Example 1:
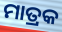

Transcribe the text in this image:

ମାତ୍ରକ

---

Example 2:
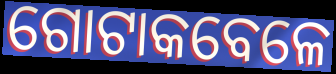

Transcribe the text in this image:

ଗୋଟାକବେଳେ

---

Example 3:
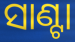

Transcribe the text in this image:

ସାଣ୍ଟା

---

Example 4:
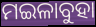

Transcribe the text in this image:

ମଇଳାବୁହା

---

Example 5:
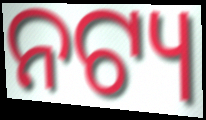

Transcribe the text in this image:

ନଟ୍ୟ